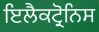
ਇਲੈਕਟ੍ਰੋਨਿਸ